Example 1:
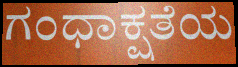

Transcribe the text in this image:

ಗಂಧಾಕ್ಷತೆಯ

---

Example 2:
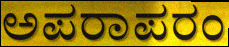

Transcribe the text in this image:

ಅಪರಾಪರಂ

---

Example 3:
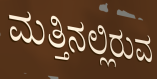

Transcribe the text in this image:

ಮತ್ತಿನಲ್ಲಿರುವ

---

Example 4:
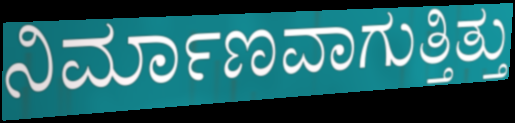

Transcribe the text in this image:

ನಿರ್ಮಾಣವಾಗುತ್ತಿತ್ತು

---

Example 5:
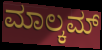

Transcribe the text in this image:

ಮಾಲ್ಕಮ್